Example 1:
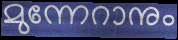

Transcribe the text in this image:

മുന്നേറാനും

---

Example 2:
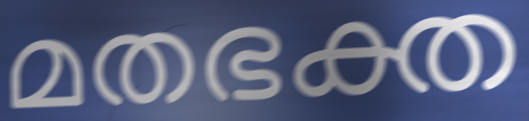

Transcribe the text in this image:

മതഭക്ത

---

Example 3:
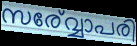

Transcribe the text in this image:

സര്വ്വോപരി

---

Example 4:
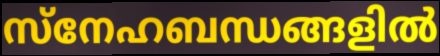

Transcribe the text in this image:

സ്നേഹബന്ധങ്ങളിൽ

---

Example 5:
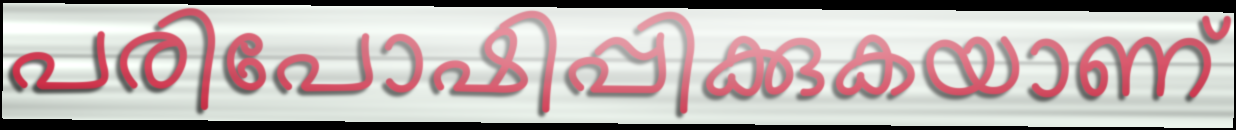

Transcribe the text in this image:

പരിപോഷിപ്പിക്കുകയാണ്